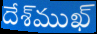
దేశ్‌ముఖ్